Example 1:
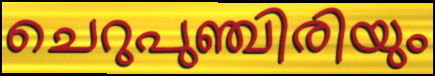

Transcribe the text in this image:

ചെറുപുഞ്ചിരിയും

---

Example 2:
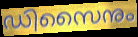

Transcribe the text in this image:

ഡിസൈനും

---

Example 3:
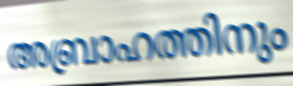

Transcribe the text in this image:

അബ്രാഹത്തിനും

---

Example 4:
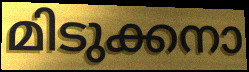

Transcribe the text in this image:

മിടുക്കനാ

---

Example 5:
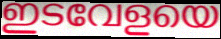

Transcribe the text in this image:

ഇടവേളയെ